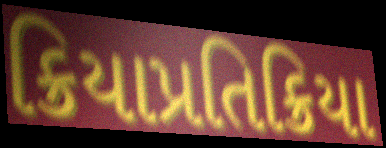
ક્રિયાપ્રતિક્રિયા